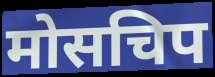
मोसचिप